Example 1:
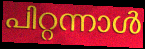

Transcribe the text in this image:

പിറ്റന്നാൾ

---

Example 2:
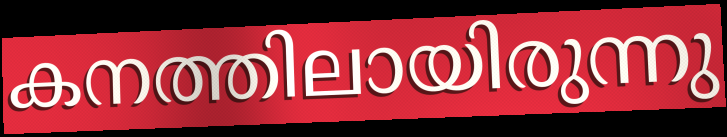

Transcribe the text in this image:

കനത്തിലായിരുന്നു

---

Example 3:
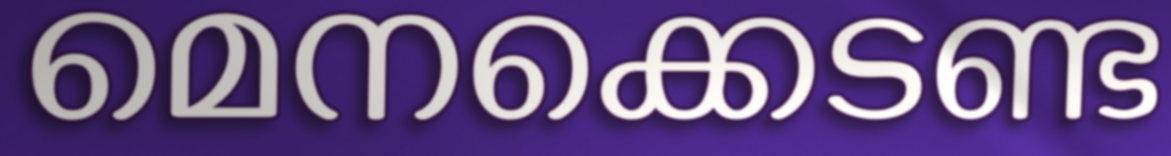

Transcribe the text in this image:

മെനക്കെടണ്ട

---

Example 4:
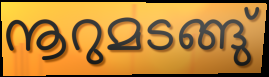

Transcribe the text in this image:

നൂറുമടങ്ങു്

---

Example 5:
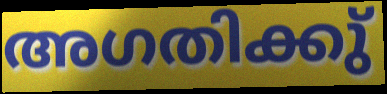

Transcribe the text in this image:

അഗതിക്കു്